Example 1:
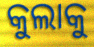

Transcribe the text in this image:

କୁଲାକୁ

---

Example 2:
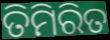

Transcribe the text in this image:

ତିମିରିତ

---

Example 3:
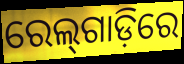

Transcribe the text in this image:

ରେଲ୍‌ଗାଡ଼ିରେ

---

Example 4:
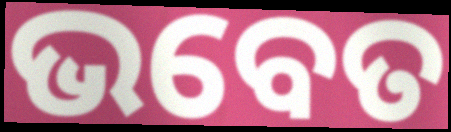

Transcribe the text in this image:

ଭବେତ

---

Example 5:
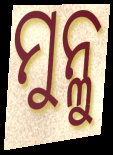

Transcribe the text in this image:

ମୁନ୍ଳୁ